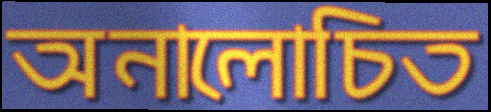
অনালোচিত